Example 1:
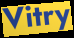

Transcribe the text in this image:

Vitry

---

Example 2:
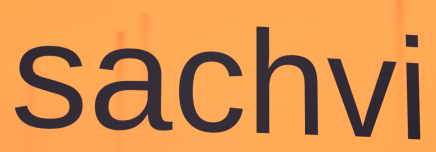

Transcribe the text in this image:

sachvi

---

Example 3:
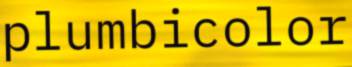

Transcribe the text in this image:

plumbicolor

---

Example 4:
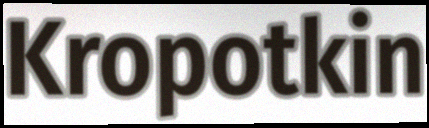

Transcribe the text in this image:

Kropotkin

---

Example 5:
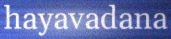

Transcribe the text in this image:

hayavadana